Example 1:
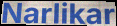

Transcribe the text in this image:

Narlikar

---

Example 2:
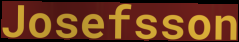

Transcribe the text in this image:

Josefsson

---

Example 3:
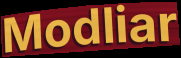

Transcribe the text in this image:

Modliar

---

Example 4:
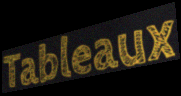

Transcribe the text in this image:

Tableaux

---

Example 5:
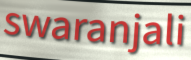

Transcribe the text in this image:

swaranjali